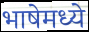
भाषेमध्ये